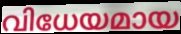
വിധേയമായ